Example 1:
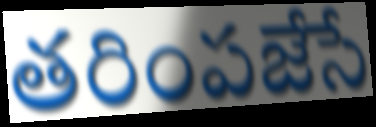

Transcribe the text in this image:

తరింపజేసే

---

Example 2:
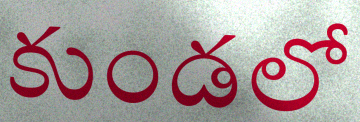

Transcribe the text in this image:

కుండలో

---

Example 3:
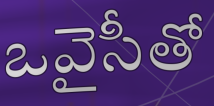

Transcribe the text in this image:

ఒవైసీతో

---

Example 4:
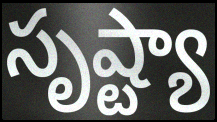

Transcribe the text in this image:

సృష్ట్యా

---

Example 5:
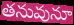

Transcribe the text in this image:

తనువునూ